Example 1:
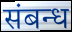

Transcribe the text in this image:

संबन्ध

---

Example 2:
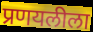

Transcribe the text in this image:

प्रणयलीला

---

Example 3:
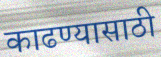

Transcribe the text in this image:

काढण्यासाठी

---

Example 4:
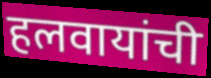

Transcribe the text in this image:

हलवायांची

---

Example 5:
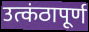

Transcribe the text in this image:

उत्कंठापूर्ण